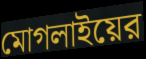
মোগলাইয়ের